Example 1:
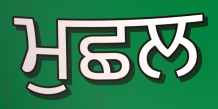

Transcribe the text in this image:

ਮੁਛਲ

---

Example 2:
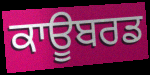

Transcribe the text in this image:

ਕਾਊਬਰਡ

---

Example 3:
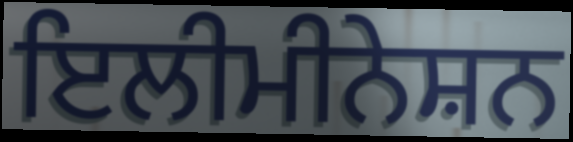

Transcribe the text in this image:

ਇਲੀਮੀਨੇਸ਼ਨ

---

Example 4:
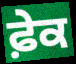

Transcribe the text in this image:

ਫ਼ੇਕ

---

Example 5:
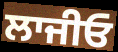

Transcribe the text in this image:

ਲਾਜੀਓ